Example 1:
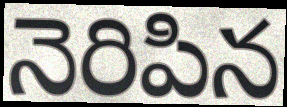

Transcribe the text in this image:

నెరిపిన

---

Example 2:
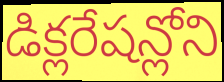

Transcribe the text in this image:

డిక్లరేషన్లోని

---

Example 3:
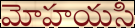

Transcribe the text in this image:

మోహయసి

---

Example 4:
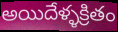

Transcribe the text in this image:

అయిదేళ్ళక్రితం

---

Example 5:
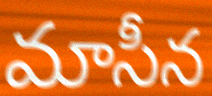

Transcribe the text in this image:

మాసీన